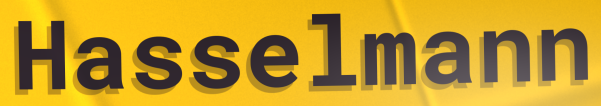
Hasselmann